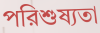
পরিশুষ্যতা